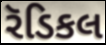
રૅડિકલ